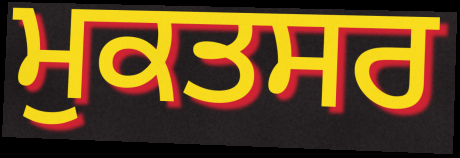
ਮੁਕਤਸਰ